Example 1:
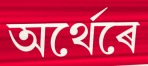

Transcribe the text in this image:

অৰ্থেৰে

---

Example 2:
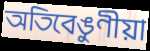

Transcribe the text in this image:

অতিবেঙুণীয়া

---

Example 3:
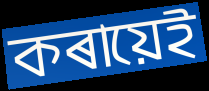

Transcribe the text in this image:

কৰায়েই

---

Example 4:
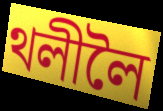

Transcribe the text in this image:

থলীলৈ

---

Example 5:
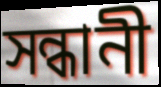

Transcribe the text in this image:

সন্ধানী